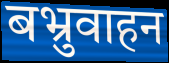
बभ्रुवाहन